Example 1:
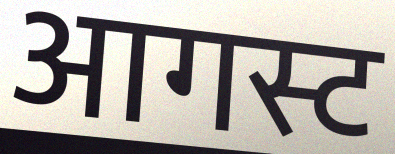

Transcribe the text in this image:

आगस्ट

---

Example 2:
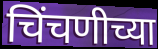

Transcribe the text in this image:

चिंचणीच्या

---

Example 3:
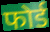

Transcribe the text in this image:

फोर्ड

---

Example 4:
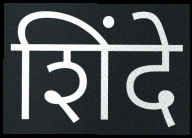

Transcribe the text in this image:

शिंदे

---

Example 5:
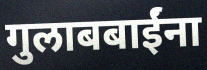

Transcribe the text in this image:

गुलाबबाईंना